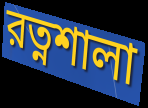
রত্নশালা